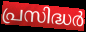
പ്രസിദ്ധർ